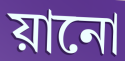
য়ানো